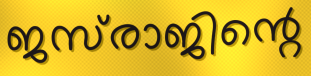
ജസ്‌രാജിന്റെ